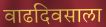
वाढदिवसाला